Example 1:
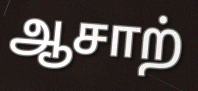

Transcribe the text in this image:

ஆசாற்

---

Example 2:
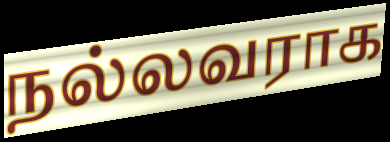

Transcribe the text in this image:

நல்லவராக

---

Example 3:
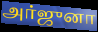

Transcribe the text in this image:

அர்ஜுனா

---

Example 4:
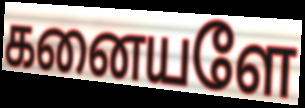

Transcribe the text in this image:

கனையளே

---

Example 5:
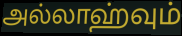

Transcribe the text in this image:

அல்லாஹ்வும்